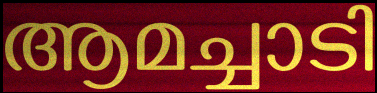
ആമച്ചാടി